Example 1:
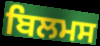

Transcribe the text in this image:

ਬਿਲਮਸ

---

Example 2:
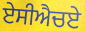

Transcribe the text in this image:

ਏਸੀਐਚਏ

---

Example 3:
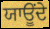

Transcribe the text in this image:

ਯਾਊਂਦੇ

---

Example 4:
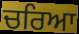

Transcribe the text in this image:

ਚਰਿਆ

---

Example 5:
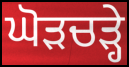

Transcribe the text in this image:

ਘੋੜਚੜ੍ਹੇ